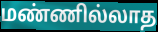
மண்ணில்லாத